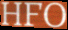
HFO